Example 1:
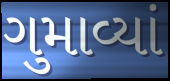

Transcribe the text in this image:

ગુમાવ્યાં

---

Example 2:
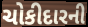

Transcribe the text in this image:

ચોકીદારની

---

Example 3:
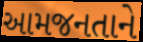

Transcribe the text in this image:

આમજનતાને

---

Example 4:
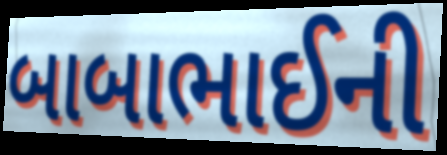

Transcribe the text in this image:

બાબાભાઈની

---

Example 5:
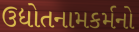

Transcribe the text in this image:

ઉદ્યોતનામકર્મનો